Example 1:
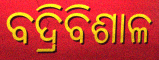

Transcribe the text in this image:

ବଦ୍ରିବିଶାଳ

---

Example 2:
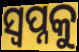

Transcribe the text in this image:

ସ୍ୱପ୍ନକୁ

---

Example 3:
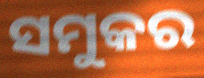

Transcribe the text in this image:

ସମୁକର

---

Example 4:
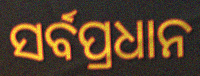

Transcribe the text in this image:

ସର୍ବପ୍ରଧାନ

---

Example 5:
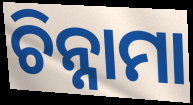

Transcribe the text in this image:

ଚିନ୍ନାମା